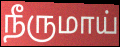
நீருமாய்